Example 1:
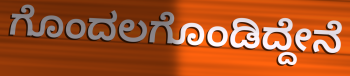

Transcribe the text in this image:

ಗೊಂದಲಗೊಂಡಿದ್ದೇನೆ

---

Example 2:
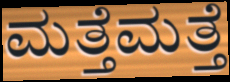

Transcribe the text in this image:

ಮತ್ತೆಮತ್ತೆ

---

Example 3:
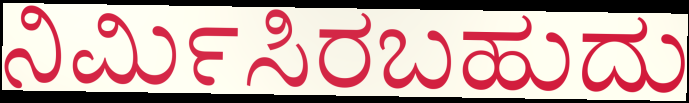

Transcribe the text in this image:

ನಿರ್ಮಿಸಿರಬಹುದು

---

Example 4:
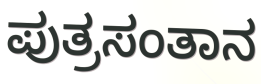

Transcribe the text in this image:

ಪುತ್ರಸಂತಾನ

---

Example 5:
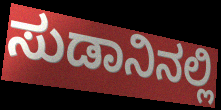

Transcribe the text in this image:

ಸುಡಾನಿನಲ್ಲಿ